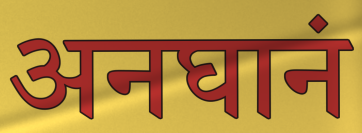
अनघानं